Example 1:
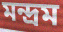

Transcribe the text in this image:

মন্দ্রম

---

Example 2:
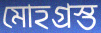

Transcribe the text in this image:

মোহগ্রস্ত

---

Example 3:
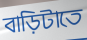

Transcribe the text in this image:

বাড়িটাতে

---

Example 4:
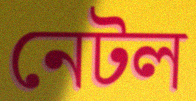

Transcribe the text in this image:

নেটল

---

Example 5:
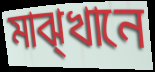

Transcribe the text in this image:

মাঝ্খানে